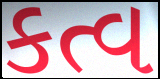
કત્વ